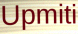
Upmiti